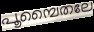
പൂമ്പൈതലേ